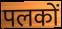
पलकों